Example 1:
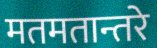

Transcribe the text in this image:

मतमतान्तरे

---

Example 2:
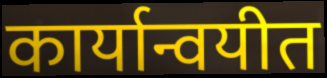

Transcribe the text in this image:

कार्यान्वयीत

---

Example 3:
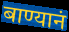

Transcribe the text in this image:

बाण्यानं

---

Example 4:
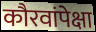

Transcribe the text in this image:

कौरवांपेक्षा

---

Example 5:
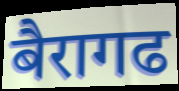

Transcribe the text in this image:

बैरागढ